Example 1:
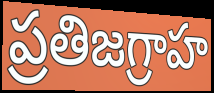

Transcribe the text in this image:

ప్రతిజగ్రాహ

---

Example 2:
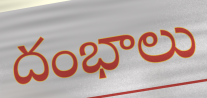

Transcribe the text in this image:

దంభాలు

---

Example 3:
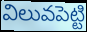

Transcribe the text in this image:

విలువపెట్టి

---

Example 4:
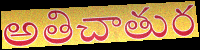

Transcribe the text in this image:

అతిచాతుర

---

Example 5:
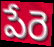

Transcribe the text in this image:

పేరె